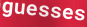
guesses